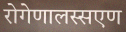
रोगेणालस्सएण